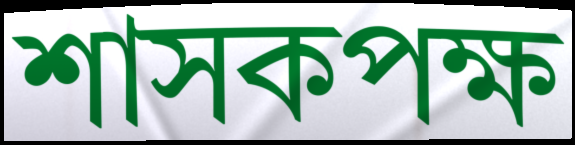
শাসকপক্ষ